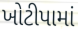
ખોટીપામાં